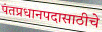
पंतप्रधानपदासाठीचे